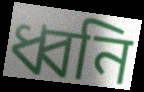
ধ্বনি